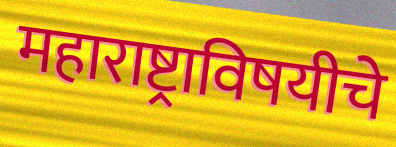
महाराष्ट्राविषयीचे